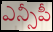
ఎన్సీపీ